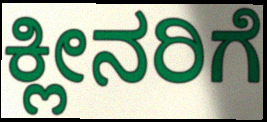
ಕ್ಲೀನರಿಗೆ